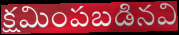
క్షమింపబడినవి